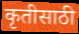
कृतीसाठी